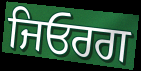
ਜਿਓਰਗ